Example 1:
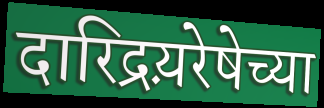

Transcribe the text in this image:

दारिद्रय़रेषेच्या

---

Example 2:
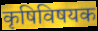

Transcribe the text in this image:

कृषिविषयक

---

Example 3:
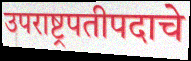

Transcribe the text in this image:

उपराष्ट्रपतीपदाचे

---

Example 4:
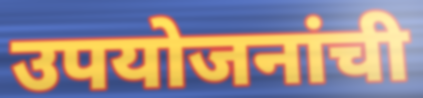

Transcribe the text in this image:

उपयोजनांची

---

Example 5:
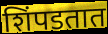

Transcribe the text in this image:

शिंपडतात